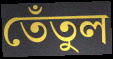
তেঁতুল